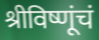
श्रीविष्णूंचं